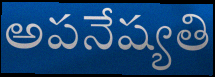
అపనేష్యతి